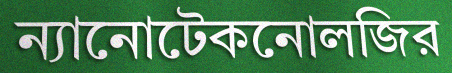
ন্যানোটেকনোলজির